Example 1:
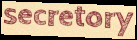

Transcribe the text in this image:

secretory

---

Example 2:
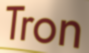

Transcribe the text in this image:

Tron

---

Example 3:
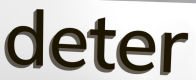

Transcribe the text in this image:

deter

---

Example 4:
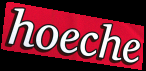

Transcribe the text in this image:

hoeche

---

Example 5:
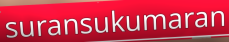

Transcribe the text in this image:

suransukumaran